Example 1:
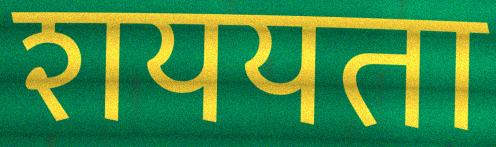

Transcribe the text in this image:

शययता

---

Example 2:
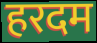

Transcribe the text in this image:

हरदम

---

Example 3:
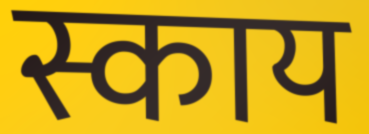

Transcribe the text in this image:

स्काय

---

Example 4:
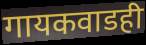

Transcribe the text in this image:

गायकवाडही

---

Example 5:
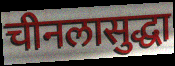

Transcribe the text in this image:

चीनलासुद्धा